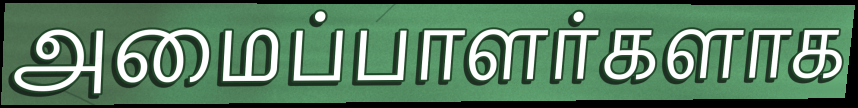
அமைப்பாளர்களாக